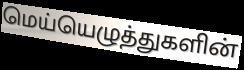
மெய்யெழுத்துகளின்